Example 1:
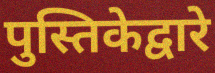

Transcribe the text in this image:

पुस्तिकेद्वारे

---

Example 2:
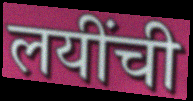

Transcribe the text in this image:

लयींची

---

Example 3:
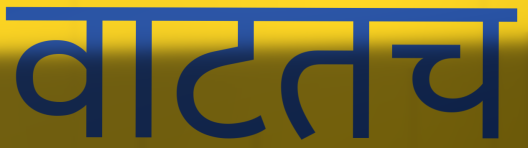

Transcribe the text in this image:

वाटतच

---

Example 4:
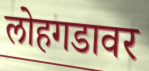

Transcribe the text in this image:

लोहगडावर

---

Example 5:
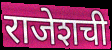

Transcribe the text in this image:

राजेशची